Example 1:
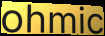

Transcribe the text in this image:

ohmic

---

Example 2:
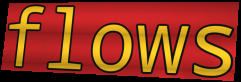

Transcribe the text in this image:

flows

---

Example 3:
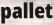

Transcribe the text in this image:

pallet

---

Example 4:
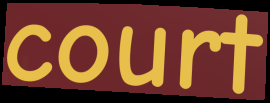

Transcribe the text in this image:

court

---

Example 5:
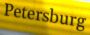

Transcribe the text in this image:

Petersburg